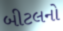
બીટલનો